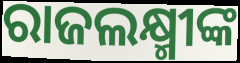
ରାଜଲକ୍ଷ୍ମୀଙ୍କ